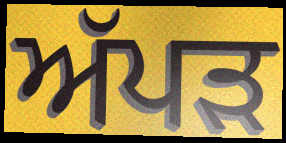
ਅੱਪੜ